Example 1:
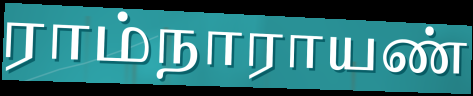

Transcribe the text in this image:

ராம்நாராயண்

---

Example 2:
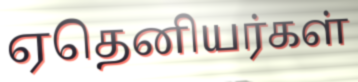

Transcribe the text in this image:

ஏதெனியர்கள்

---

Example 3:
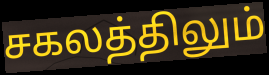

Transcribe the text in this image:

சகலத்திலும்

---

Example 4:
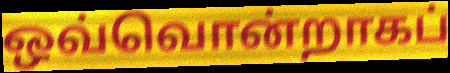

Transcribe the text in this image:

ஒவ்வொன்றாகப்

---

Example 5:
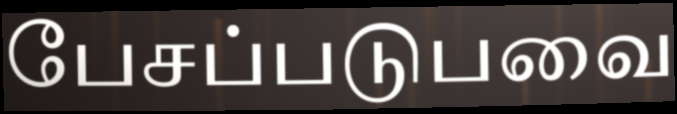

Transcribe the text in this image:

பேசப்படுபவை